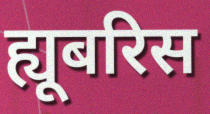
ह्यूबरिस